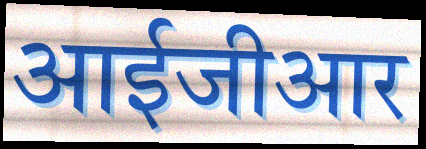
आईजीआर